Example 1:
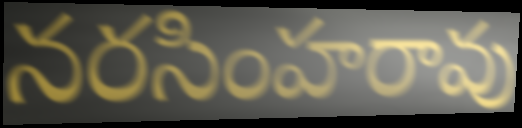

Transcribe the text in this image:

నరసింహరావు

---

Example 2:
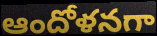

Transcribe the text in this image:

ఆందోళనగా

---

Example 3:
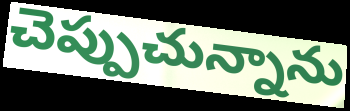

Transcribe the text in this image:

చెప్పుచున్నాను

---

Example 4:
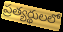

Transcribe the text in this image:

ప్రత్యర్థులలో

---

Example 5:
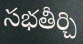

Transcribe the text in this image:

సభతీర్చి